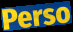
Perso